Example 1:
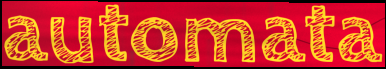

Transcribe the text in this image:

automata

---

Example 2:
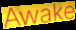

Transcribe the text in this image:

Awake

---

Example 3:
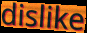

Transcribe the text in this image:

dislike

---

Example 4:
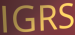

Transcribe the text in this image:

IGRS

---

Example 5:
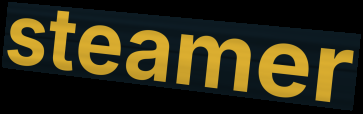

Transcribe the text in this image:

steamer